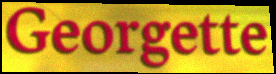
Georgette